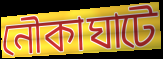
নৌকাঘাটে